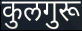
कुलगुरू